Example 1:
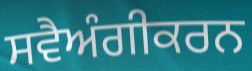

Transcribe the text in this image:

ਸਵੈਅੰਗੀਕਰਨ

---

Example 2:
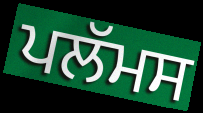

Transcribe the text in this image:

ਪਲੱਮਸ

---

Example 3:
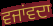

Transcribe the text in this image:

ਵਜਾਂਵਦਾ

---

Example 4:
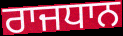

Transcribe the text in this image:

ਰਾਜਧਾਨ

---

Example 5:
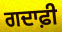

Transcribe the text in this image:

ਗਦਾਫ਼ੀ